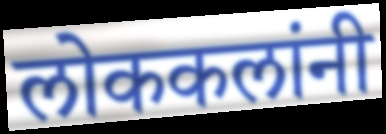
लोककलांनी